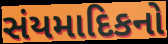
સંયમાદિકનો